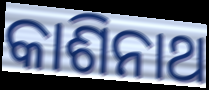
କାଶିନାଥ